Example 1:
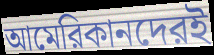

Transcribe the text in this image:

আমেরিকানদেরই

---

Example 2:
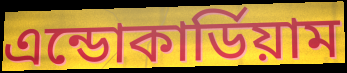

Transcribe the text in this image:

এন্ডোকার্ডিয়াম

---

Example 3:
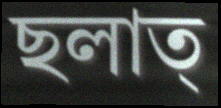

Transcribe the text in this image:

ছলাত্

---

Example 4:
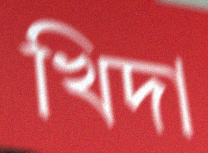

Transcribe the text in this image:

খিদা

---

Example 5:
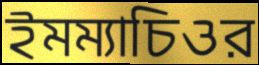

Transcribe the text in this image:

ইমম্যাচিওর